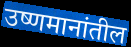
उष्णमानांतील